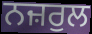
ਨਜ਼ਰੁਲ